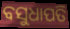
ବସୁଧାପତି